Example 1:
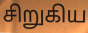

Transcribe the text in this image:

சிறுகிய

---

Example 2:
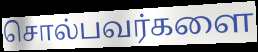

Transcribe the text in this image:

சொல்பவர்களை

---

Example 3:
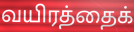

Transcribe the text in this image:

வயிரத்தைக்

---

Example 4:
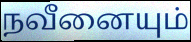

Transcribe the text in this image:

நவீனையும்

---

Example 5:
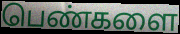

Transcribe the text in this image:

பெண்களை